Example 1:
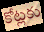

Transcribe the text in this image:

కోట్లకు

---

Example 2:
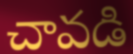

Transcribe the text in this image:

చావడి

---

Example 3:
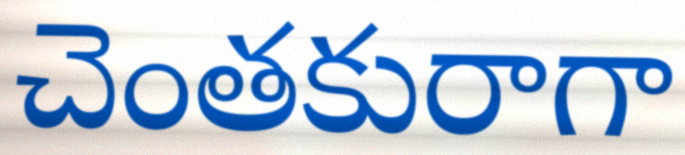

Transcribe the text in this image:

చెంతకురాగా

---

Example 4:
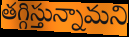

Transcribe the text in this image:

తగ్గిస్తున్నామని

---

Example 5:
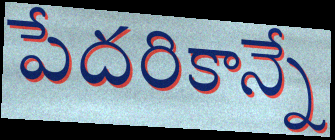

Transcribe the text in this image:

పేదరికాన్నే